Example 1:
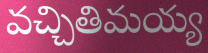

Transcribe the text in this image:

వచ్చితిమయ్య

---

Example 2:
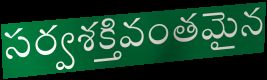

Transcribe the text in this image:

సర్వశక్తివంతమైన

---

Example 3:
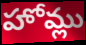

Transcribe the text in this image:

హోమ్లు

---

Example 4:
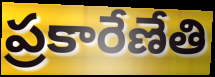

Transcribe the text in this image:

ప్రకారేణేతి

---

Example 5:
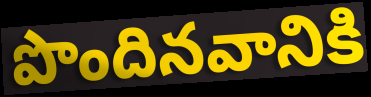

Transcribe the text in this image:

పొందినవానికి